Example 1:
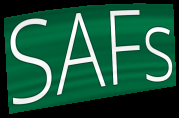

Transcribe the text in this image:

SAFs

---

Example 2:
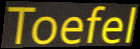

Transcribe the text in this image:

Toefel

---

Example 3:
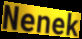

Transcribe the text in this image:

Nenek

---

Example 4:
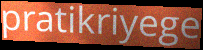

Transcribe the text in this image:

pratikriyege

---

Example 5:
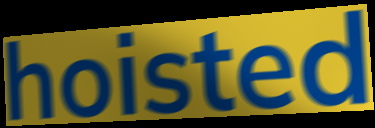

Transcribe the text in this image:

hoisted